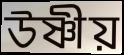
উষ্ণীয়